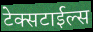
टेक्सटाईल्स